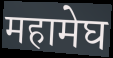
महामेघ